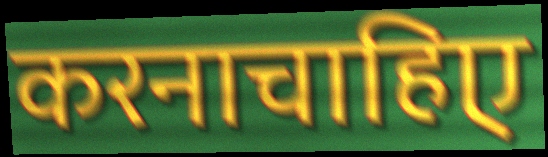
करनाचाहिए